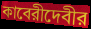
কাবেরীদেবীর